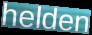
helden